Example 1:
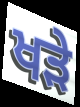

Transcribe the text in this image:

ਖਡ਼ੇ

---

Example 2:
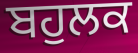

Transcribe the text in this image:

ਬਹੁਲਕ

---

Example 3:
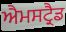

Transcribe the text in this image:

ਐਮਸਟ੍ਰੈਡ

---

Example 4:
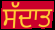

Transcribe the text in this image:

ਸੱਦਾਤ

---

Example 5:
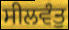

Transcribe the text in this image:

ਸੀਲਵੰਤੁ